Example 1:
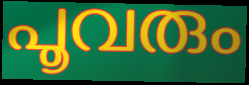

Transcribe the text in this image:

പൂവരും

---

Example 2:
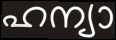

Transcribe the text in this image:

ഹന്യാ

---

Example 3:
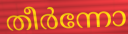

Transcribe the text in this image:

തീർന്നോ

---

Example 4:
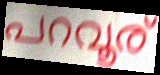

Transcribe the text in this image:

പറവൂര്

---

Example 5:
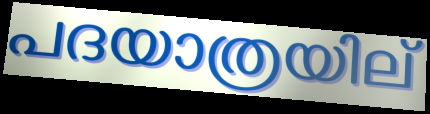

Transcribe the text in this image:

പദയാത്രയില്